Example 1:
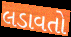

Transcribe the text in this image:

લડાવતો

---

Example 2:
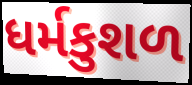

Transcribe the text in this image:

ધર્મકુશળ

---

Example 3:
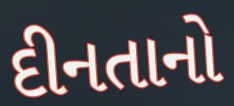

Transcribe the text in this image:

દીનતાનો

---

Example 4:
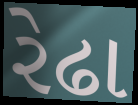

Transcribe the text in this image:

રેઢા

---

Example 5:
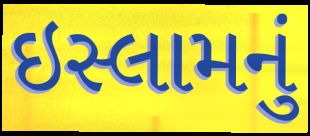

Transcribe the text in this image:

ઇસ્લામનું